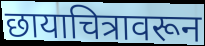
छायाचित्रावरून